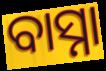
ବାସ୍ନା